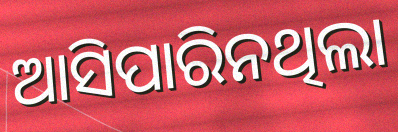
ଆସିପାରିନଥିଲା